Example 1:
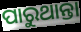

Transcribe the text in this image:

ପାରୁଥାନ୍ତା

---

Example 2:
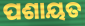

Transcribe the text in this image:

ପଶାୟତ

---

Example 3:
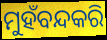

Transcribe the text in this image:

ମୁହଁବନ୍ଦକରି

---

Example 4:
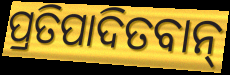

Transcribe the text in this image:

ପ୍ରତିପାଦିତବାନ୍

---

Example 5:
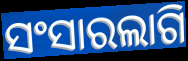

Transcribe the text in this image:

ସଂସାରଲାଗି